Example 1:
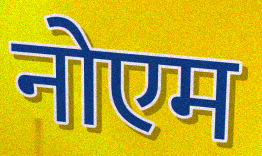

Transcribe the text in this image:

नोएम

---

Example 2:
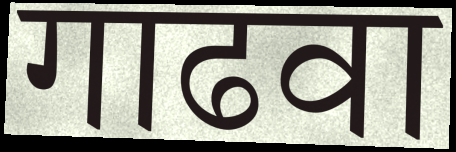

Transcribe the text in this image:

गाढवा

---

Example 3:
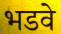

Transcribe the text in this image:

भडवे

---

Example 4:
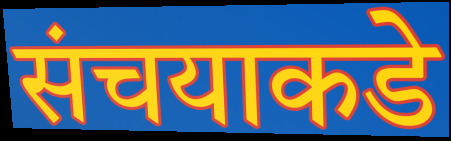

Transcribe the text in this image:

संचयाकडे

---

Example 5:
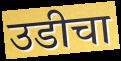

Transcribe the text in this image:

उडीचा